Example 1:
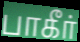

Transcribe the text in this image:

பாகீர்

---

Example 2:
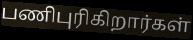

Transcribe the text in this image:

பணிபுரிகிறார்கள்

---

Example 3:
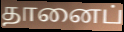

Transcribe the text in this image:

தானைப்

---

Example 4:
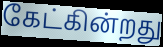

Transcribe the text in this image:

கேட்கின்றது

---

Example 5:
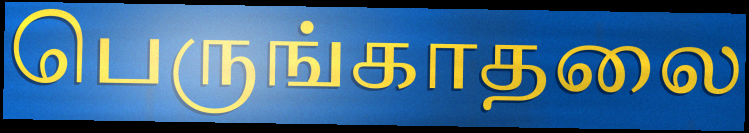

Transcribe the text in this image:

பெருங்காதலை